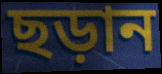
ছড়ান